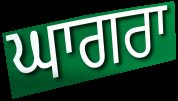
ਘਾਗਰਾ